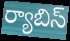
ర్యాబిస్